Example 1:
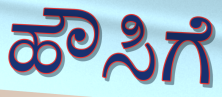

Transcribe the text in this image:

ಹೌಸಿಗೆ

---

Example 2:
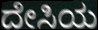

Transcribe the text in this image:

ದೇಸಿಯ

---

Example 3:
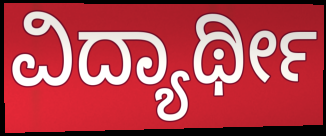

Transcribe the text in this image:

ವಿದ್ಯಾರ್ಥೀ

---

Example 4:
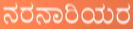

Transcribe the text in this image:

ನರನಾರಿಯರ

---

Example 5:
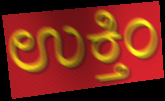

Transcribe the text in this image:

ಉಕ್ತಿಂ